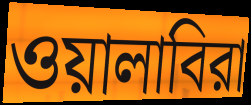
ওয়ালাবিরা